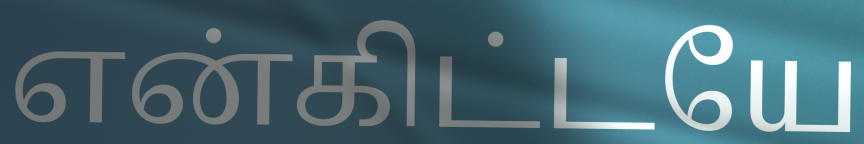
என்கிட்டயே